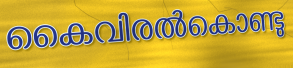
കൈവിരൽകൊണ്ടു